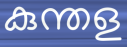
കുന്തള